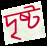
দৃষ্ট